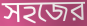
সহজের